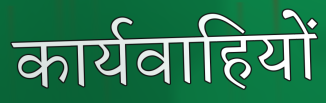
कार्यवाहियों